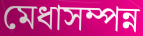
মেধাসম্পন্ন